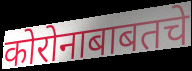
कोरोनाबाबतचे